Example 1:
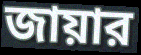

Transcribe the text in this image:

জায়ার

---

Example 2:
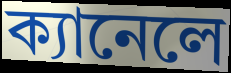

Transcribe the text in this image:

ক্যানেলে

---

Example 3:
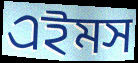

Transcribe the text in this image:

এইমস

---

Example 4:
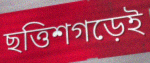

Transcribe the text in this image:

ছত্তিশগড়েই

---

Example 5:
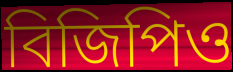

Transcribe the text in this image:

বিজিপিও